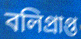
বলিপ্রাপ্ত